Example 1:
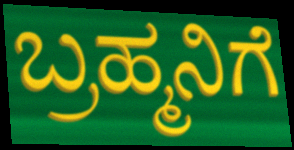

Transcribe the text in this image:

ಬ್ರಹ್ಮನಿಗೆ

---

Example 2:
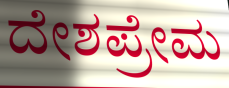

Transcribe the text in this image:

ದೇಶಪ್ರೇಮ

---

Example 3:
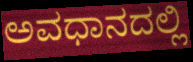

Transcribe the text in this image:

ಅವಧಾನದಲ್ಲಿ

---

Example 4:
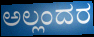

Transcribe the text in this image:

ಅಲ್ಲಂದರ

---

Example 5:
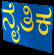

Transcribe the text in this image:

ನೈತಿಕ